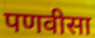
पणवीसा